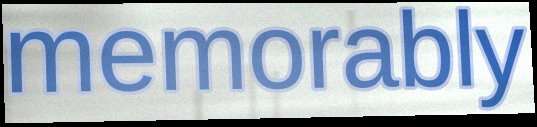
memorably